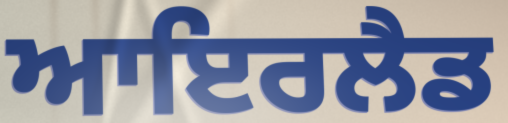
ਆਇਰਲੈਡ